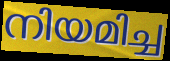
നിയമിച്ച